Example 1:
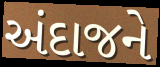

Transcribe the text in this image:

અંદાજને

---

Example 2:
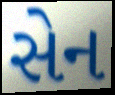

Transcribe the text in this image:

સેન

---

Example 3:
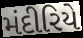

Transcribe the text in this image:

મંદીરિયે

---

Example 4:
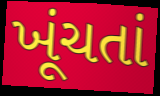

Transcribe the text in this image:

ખૂંચતાં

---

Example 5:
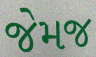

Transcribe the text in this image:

જેમજ